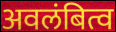
अवलंबित्व